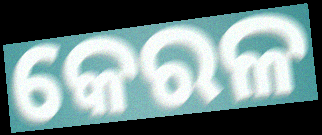
କେରଳ